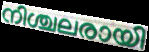
നിശ്ചലരായി